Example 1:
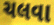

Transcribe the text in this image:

ચલવા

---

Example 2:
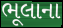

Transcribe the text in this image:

ભૂલાના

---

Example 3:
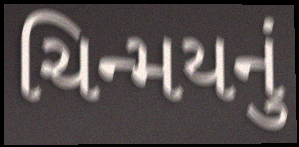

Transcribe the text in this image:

ચિન્મયનું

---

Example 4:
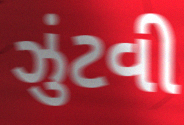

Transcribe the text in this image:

ઝુંટવી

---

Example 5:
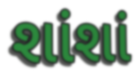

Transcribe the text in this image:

શાંશાં